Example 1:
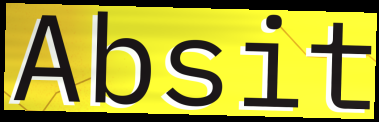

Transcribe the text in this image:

Absit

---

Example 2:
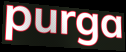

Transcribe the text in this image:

purga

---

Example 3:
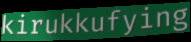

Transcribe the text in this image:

kirukkufying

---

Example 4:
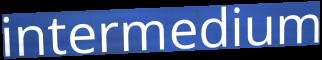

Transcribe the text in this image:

intermedium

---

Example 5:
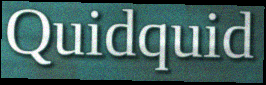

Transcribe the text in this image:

Quidquid